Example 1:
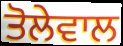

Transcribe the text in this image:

ਤੋਲੇਵਾਲ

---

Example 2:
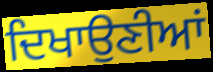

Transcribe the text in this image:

ਦਿਖਾਉਣੀਆਂ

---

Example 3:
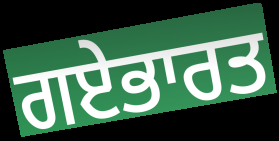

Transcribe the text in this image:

ਗਏਭਾਰਤ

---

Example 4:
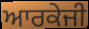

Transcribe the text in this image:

ਆਰਕੇਜੀ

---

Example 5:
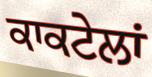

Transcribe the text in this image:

ਕਾਕਟੇਲਾਂ